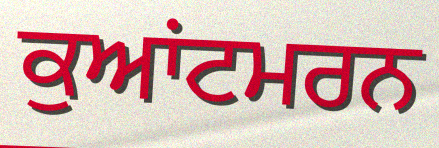
ਕੁਆਂਟਮਰਨ